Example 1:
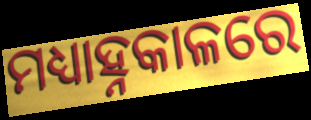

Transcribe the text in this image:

ମଧ୍ୟାହ୍ନକାଳରେ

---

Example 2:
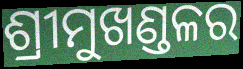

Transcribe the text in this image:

ଶ୍ରୀମୁଖଣ୍ଡଳର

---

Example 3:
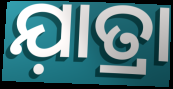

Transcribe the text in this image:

ଯ଼ାତ୍ରା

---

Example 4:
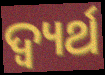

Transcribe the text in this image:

ଦ୍ୱ୍ୟର୍ଥ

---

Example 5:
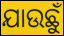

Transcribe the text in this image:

ଯାଉଛୁଁ